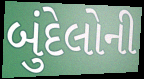
બુંદેલોની